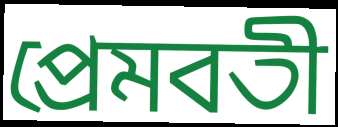
প্রেমবতী